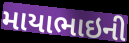
માયાભાઇની